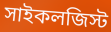
সাইকলজিস্ট